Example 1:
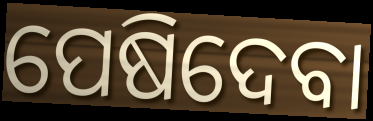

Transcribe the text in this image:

ପେଷିଦେବା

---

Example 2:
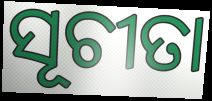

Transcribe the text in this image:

ସୂଚୀତା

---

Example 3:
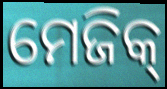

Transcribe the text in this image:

ମେଜିକ୍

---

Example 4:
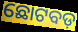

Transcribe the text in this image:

ଛୋଟବଡ଼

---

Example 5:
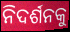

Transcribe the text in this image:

ନିଦର୍ଶନକୁ